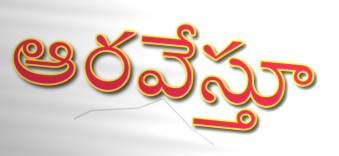
ఆరవేస్తూ